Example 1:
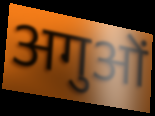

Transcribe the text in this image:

अगुओं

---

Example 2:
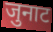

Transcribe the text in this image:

जुनाट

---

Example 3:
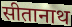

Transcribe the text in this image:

सीतानाथ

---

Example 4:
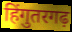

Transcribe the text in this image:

हिंगुतरगढ़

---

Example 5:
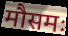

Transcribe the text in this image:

मौसमः